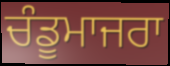
ਚੰਡੂਮਾਜਰਾ